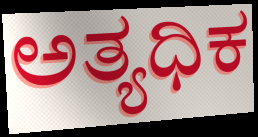
ಅತ್ಯಧಿಕ